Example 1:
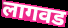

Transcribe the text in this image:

लागवड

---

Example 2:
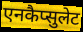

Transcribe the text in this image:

एनकैप्सुलेट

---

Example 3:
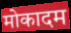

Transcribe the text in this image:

मोकादम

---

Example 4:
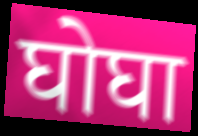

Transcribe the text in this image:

घोघा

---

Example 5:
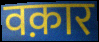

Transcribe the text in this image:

वक़ार